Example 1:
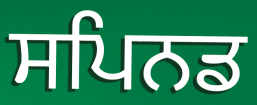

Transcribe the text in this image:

ਸਪਿਨਡ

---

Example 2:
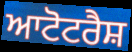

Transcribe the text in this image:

ਆਟੋਟਰੈਸ਼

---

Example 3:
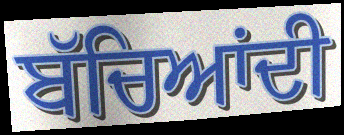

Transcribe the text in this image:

ਬੱਚਿਆਂਦੀ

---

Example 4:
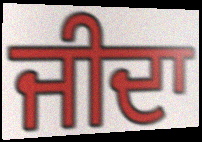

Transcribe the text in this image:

ਜੀਦਾ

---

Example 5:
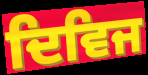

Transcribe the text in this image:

ਦਿਵਿਜ